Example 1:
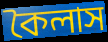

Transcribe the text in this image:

কৈলাস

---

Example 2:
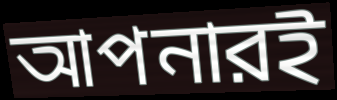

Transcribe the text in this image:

আপনারই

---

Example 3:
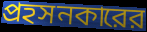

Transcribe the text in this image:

প্রহসনকারের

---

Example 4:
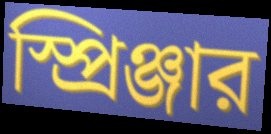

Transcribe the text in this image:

স্প্রিঞ্জার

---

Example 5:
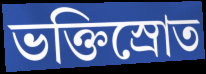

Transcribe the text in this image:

ভক্তিস্রোত